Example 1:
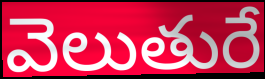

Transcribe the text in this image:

వెలుతురే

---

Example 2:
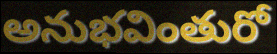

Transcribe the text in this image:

అనుభవింతురో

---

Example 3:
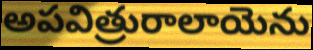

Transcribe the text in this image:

అపవిత్రురాలాయెను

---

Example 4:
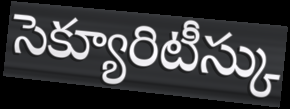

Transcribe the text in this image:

సెక్యూరిటీస్కు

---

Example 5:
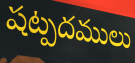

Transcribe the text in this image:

షట్పదములు